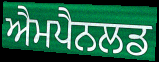
ਐਮਪੈਨਲਡ